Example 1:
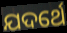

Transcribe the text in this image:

ଯଦର୍ଥେ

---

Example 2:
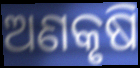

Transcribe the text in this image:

ଅଣକୃଷି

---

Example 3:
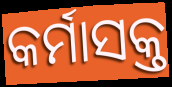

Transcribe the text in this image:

କର୍ମାସକ୍ତ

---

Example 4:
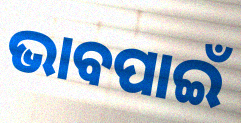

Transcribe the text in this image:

ଭାବପାଇଁ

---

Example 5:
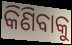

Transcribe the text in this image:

କିଣିବାକୁ